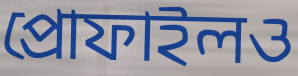
প্রোফাইলও